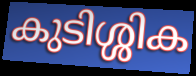
കുടിശ്ശിക